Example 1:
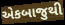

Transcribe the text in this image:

એકબાજુથી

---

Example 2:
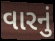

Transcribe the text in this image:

વારનું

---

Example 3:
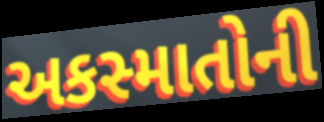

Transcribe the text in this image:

અકસ્માતોની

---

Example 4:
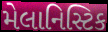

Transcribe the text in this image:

મેલાનિસ્ટિક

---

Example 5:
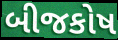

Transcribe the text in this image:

બીજકોષ